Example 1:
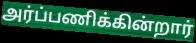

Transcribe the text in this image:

அர்ப்பணிக்கின்றார்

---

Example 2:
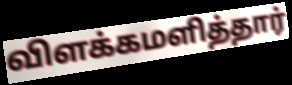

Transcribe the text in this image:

விளக்கமளித்தார்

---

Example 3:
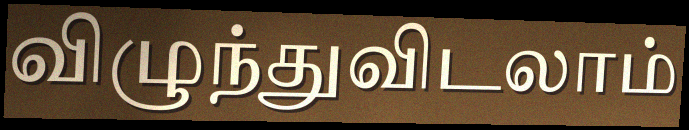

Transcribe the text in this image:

விழுந்துவிடலாம்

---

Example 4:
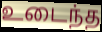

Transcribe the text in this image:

உடைந்த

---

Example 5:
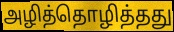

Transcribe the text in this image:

அழித்தொழித்தது